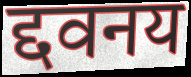
द्दवनय